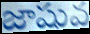
జాషువ